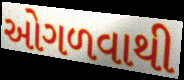
ઓગળવાથી